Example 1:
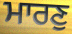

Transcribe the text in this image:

ਮਾਰਣੁ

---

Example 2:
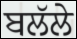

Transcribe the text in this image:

ਬਲੱਲੇ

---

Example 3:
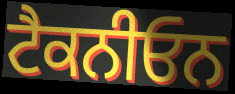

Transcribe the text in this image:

ਟੈਕਨੀਓਨ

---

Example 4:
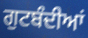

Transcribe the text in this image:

ਗੁਟਬੰਦੀਆਂ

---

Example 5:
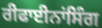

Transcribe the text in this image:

ਰੀਫਾਈਨਾਂਸਿੰਗ